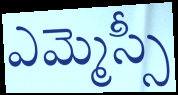
ఎమ్మెస్సీ